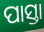
ପାସ୍ତା